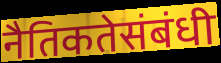
नैतिकतेसंबंधी